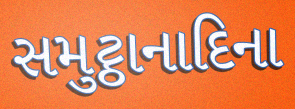
સમુટ્ઠાનાદિના